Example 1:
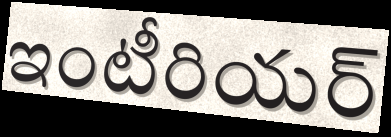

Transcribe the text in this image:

ఇంటీరియర్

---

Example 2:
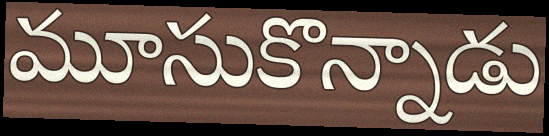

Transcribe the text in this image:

మూసుకొన్నాడు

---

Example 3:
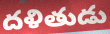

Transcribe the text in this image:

దళితుడు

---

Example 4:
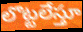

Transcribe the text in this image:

లొట్టలేస్తూ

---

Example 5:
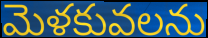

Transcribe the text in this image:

మెళకువలను